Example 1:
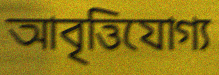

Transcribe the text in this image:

আবৃত্তিযোগ্য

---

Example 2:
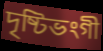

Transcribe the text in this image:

দৃষ্টিভংগী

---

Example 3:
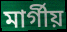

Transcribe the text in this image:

মার্গীয়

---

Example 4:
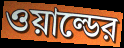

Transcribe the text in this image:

ওয়াল্ডের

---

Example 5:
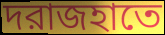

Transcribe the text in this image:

দরাজহাতে